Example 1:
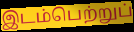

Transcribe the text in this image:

இடம்பெற்றுப்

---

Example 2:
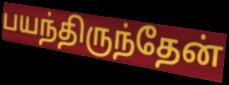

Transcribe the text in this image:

பயந்திருந்தேன்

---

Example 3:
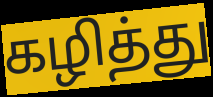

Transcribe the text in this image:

கழித்து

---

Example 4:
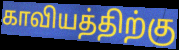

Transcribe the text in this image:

காவியத்திற்கு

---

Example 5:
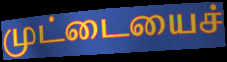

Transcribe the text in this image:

முட்டையைச்